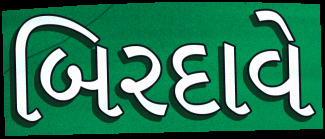
બિરદાવે